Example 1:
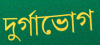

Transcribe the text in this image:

দুর্গাভোগ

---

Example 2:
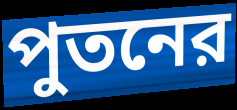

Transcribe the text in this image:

পুতনের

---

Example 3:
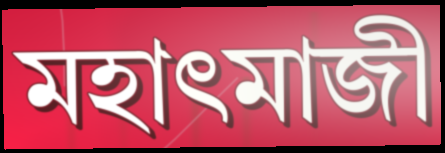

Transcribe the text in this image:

মহাৎমাজী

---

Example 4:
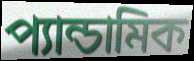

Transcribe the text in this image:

প্যান্ডামিক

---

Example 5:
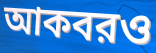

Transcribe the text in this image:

আকবরও